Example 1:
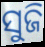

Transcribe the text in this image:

ସୁଜି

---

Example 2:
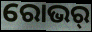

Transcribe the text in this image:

ରୋଭର୍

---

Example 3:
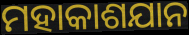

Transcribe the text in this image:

ମହାକାଶଯାନ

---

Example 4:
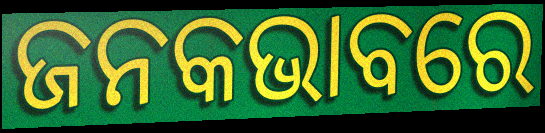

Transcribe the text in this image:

ଜନକଭାବରେ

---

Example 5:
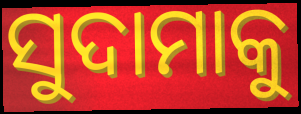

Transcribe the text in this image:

ସୁଦାମାକୁ